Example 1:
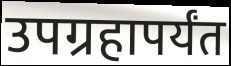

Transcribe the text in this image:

उपग्रहापर्यंत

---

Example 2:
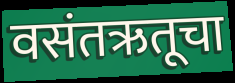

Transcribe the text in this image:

वसंतऋतूचा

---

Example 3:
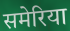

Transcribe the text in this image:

समेरिया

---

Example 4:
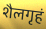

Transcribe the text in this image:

शैलगृहं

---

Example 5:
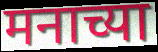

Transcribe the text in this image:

मनाच्‍या